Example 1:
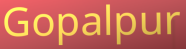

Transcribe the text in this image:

Gopalpur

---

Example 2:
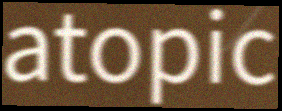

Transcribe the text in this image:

atopic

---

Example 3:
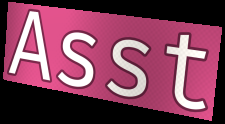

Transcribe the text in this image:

Asst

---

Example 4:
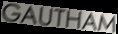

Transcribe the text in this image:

GAUTHAM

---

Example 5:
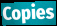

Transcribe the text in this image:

Copies